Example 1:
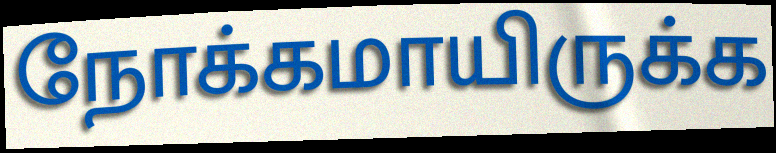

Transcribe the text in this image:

நோக்கமாயிருக்க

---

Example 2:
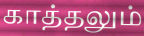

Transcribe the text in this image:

காத்தலும்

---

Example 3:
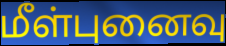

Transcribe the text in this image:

மீள்புனைவு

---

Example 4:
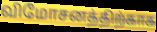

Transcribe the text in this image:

விமோசனத்திற்காக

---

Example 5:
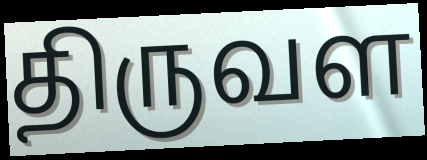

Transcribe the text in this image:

திருவள